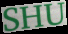
SHU